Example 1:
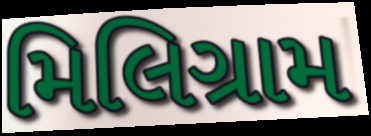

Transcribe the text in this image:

મિલિગ્રામ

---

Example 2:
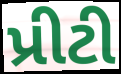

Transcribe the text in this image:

પ્રીટી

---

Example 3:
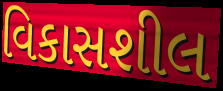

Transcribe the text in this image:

વિકાસશીલ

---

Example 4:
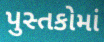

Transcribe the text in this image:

પુસ્તકોમાં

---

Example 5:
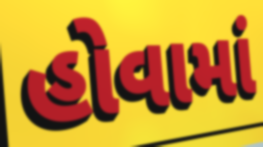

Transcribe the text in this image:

હોવામાં